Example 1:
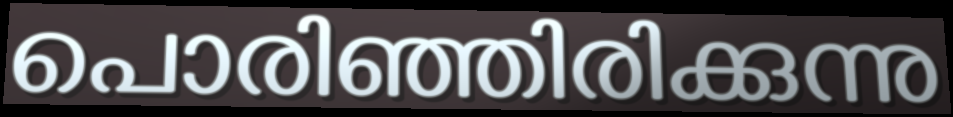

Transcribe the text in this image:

പൊരിഞ്ഞിരിക്കുന്നു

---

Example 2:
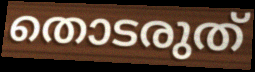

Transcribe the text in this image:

തൊടരുത്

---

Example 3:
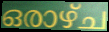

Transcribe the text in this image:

ഒരാഴ്ച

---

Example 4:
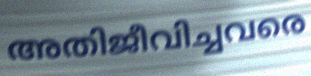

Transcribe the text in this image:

അതിജീവിച്ചവരെ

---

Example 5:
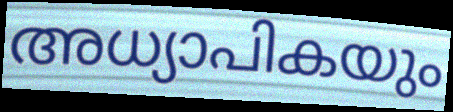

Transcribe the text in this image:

അധ്യാപികയും